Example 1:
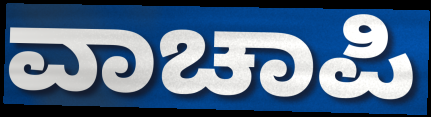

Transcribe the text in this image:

ವಾಚಾಪಿ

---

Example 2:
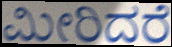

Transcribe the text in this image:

ಮೀರಿದರೆ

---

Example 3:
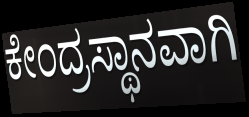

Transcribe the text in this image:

ಕೇಂದ್ರಸ್ಥಾನವಾಗಿ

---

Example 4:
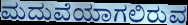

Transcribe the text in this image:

ಮದುವೆಯಾಗಲಿರುವ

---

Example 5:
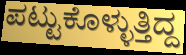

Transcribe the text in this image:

ಪಟ್ಟುಕೊಳ್ಳುತ್ತಿದ್ದ